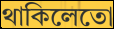
থাকিলেতো